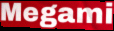
Megami